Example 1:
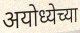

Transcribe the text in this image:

अयोध्येच्या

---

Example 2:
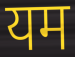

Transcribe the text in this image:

यम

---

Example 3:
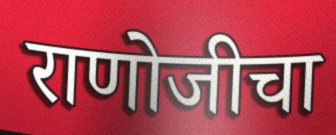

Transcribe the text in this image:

राणोजीचा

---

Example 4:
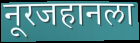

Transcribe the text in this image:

नूरजहानला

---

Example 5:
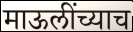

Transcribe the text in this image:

माऊलींच्याच